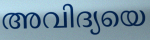
അവിദ്യയെ